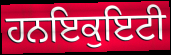
ਹਨਇਕੁਇਟੀ